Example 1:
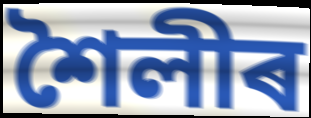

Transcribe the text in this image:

শৈলীৰ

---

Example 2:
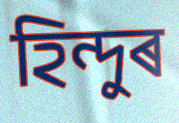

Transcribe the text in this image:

হিন্দুৰ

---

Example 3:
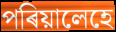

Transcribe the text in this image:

পৰিয়ালেহে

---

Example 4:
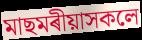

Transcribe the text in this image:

মাছমৰীয়াসকলে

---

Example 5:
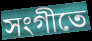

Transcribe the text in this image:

সংগীতে